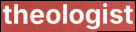
theologist